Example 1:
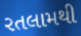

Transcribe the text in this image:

રતલામથી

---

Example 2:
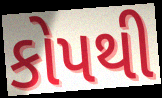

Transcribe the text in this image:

કોપથી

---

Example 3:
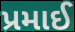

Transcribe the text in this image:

પ્રમાઈ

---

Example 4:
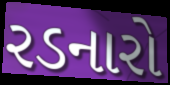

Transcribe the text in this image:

રડનારો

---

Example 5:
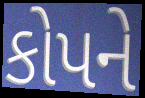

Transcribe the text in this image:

કોપને